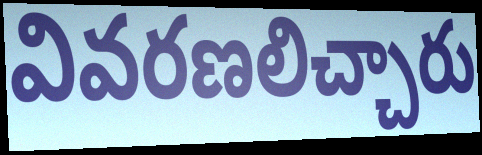
వివరణలిచ్చారు